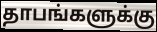
தாபங்களுக்கு